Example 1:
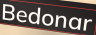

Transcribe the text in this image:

Bedonar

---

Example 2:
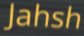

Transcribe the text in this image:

Jahsh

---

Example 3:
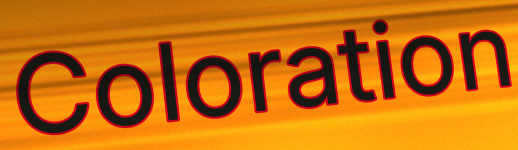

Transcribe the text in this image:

Coloration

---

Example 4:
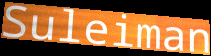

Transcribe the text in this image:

Suleiman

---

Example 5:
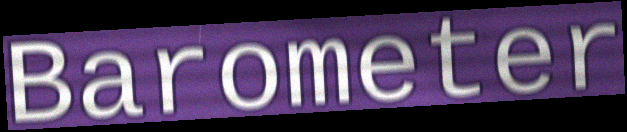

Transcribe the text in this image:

Barometer